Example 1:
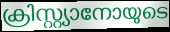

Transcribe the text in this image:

ക്രിസ്റ്റ്യാനോയുടെ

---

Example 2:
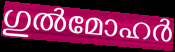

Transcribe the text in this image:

ഗുൽമോഹർ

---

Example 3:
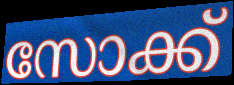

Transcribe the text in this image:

സോക്ക്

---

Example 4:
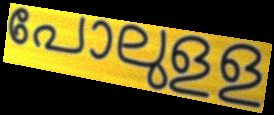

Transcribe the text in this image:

പോലുളള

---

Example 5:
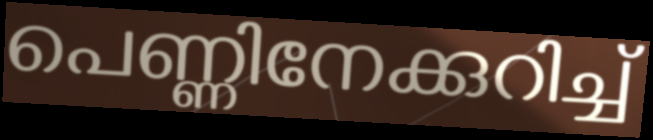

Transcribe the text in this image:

പെണ്ണിനേക്കുറിച്ച്